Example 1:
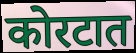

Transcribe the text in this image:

कोरटात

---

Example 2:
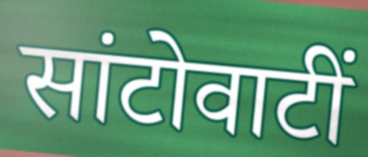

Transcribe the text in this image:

सांटोवाटीं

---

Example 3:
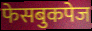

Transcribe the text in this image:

फेसबुकपेज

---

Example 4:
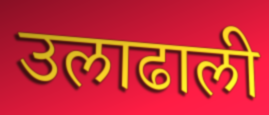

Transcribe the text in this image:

उलाढाली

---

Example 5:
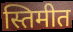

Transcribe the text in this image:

स्तिमीत